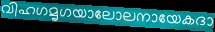
വിഹഗമൃഗയാലോലനായേകദാ